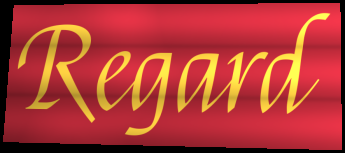
Regard